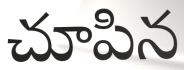
చూపిన